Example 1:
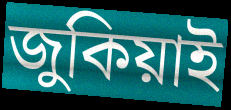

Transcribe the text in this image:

জুকিয়াই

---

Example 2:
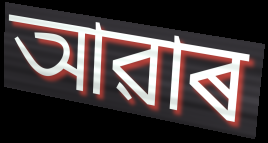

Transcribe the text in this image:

আৱাৰ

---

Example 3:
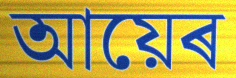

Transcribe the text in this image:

আয়েৰ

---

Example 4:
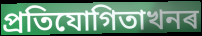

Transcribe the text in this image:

প্ৰতিযোগিতাখনৰ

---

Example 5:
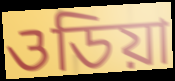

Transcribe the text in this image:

ওডিয়া